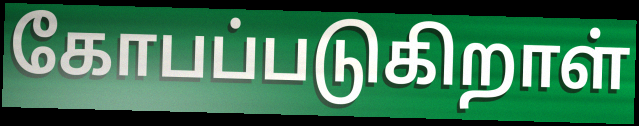
கோபப்படுகிறாள்